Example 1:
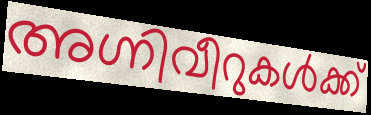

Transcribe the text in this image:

അഗ്നിവീറുകൾക്ക്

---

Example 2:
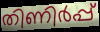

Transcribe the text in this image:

തിണിർപ്പ്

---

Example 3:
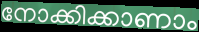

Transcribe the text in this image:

നോക്കിക്കാണാം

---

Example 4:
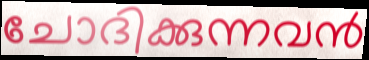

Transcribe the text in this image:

ചോദിക്കുന്നവൻ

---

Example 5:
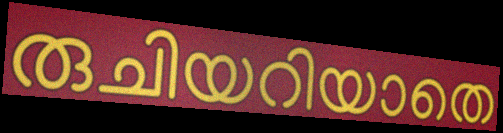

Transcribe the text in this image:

രുചിയറിയാതെ